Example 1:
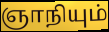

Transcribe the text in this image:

ஞாநியும்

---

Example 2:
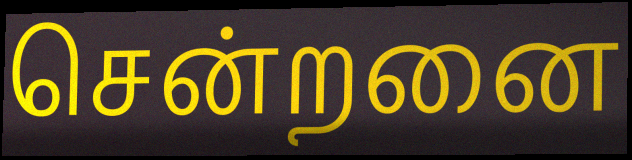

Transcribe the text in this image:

சென்றனை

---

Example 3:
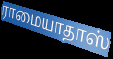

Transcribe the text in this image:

ராமையாதாஸ்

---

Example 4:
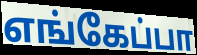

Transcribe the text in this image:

எங்கேப்பா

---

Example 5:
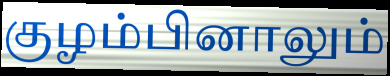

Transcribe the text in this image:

குழம்பினாலும்